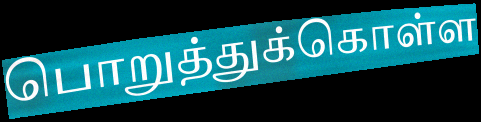
பொறுத்துக்கொள்ள